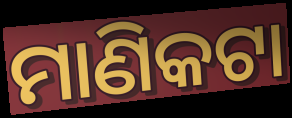
ମାଣିକଟା